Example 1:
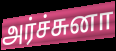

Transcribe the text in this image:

அர்ச்சுனா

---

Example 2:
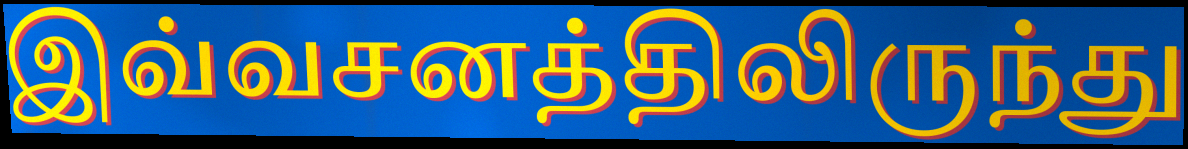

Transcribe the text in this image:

இவ்வசனத்திலிருந்து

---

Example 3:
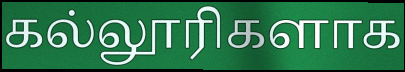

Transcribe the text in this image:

கல்லூரிகளாக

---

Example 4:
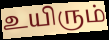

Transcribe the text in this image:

உயிரும்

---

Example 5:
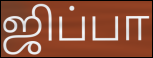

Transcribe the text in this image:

ஜிப்பா